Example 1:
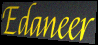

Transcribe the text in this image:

Edaneer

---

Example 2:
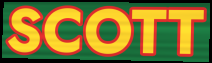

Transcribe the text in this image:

SCOTT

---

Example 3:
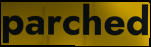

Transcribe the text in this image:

parched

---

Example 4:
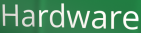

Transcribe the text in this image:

Hardware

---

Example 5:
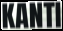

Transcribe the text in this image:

KANTI